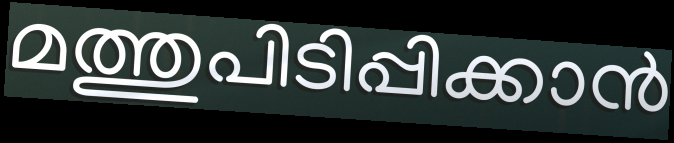
മത്തുപിടിപ്പിക്കാൻ